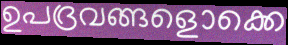
ഉപദ്രവങ്ങളൊക്കെ